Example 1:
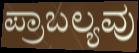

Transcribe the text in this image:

ಪ್ರಾಬಲ್ಯವು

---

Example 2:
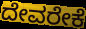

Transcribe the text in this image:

ದೇವರೇಕೆ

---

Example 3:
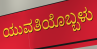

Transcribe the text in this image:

ಯುವತಿಯೊಬ್ಬಳು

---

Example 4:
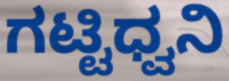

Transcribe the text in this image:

ಗಟ್ಟಿಧ್ವನಿ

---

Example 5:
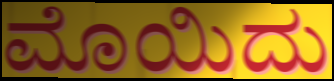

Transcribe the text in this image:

ಮೊಯಿದು